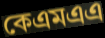
কেএমএএ